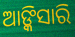
ଆଙ୍କିସାରି